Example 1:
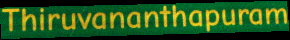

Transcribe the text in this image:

Thiruvananthapuram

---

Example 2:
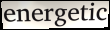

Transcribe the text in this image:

energetic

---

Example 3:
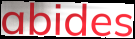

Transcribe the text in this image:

abides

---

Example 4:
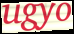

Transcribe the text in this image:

ugyo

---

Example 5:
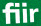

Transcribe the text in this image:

fiir